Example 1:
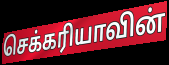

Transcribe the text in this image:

செக்கரியாவின்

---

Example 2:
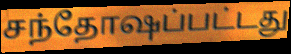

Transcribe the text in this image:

சந்தோஷப்பட்டது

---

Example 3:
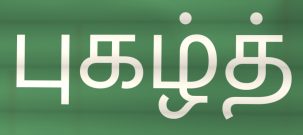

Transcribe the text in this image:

புகழ்த்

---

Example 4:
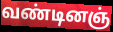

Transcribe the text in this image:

வண்டினஞ்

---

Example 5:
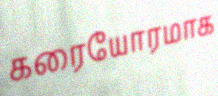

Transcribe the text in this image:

கரையோரமாக